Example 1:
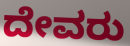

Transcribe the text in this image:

ದೇವರು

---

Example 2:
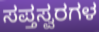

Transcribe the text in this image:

ಸಪ್ತಸ್ವರಗಳ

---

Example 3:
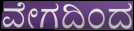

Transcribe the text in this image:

ವೇಗದಿಂದ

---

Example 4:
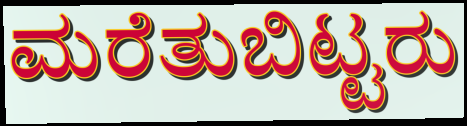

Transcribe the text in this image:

ಮರೆತುಬಿಟ್ಟರು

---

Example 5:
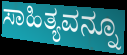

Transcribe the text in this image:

ಸಾಹಿತ್ಯವನ್ನೂ